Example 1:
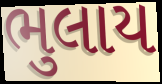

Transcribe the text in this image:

ભુલાય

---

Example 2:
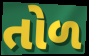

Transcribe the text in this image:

તોળ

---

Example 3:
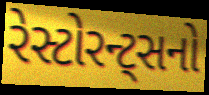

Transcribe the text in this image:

રેસ્ટોરન્ટ્સનો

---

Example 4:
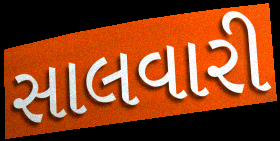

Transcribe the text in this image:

સાલવારી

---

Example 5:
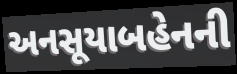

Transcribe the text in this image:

અનસૂયાબહેનની